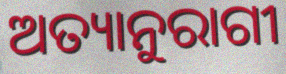
ଅତ୍ୟାନୁରାଗୀ